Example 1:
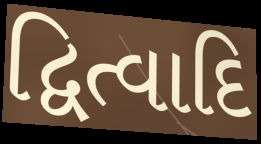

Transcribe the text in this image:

દ્વિત્વાદિ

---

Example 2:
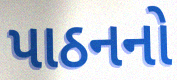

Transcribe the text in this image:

પાઠનનો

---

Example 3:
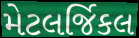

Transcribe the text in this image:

મેટલર્જિકલ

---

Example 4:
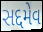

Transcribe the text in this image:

સદ્દમેવ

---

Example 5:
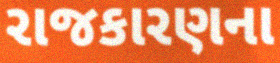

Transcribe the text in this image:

રાજકારણના